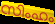
സിംഹം